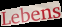
Lebens